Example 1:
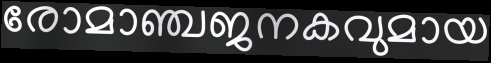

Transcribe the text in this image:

രോമാഞ്ചജനകവുമായ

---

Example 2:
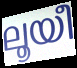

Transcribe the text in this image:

ലൂയീ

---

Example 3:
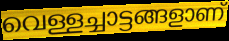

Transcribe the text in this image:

വെള്ളച്ചാട്ടങ്ങളാണ്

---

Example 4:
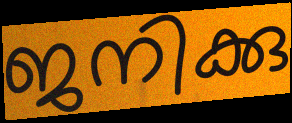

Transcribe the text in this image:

ജനിക്കു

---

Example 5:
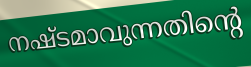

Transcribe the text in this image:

നഷ്ടമാവുന്നതിന്റെ